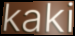
kaki